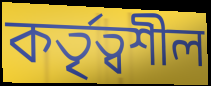
কর্তৃত্বশীল